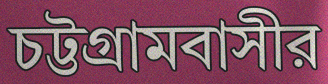
চট্টগ্রামবাসীর